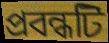
প্ৰবন্ধটি